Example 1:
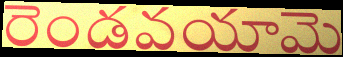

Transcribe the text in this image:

రెండవయామె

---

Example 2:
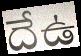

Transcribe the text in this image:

దేఉ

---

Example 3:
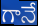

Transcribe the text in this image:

గానే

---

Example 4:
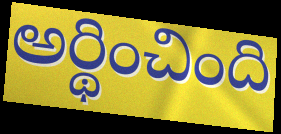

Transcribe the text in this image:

అర్థించింది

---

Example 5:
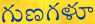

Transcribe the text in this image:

గుణగళూ